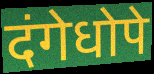
दंगेधोपे